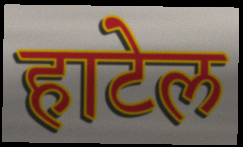
हाटेल